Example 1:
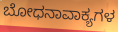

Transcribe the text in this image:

ಬೋಧನಾವಾಕ್ಯಗಳ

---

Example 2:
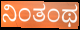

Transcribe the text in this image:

ನಿಂತಂಥ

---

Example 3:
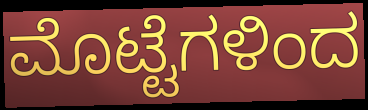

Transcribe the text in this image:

ಮೊಟ್ಟೆಗಳಿಂದ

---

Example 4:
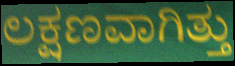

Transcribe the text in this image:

ಲಕ್ಷಣವಾಗಿತ್ತು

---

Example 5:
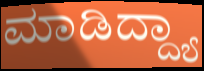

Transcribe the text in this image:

ಮಾಡಿದ್ದ್ಯಾ